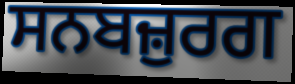
ਸਨਬਜ਼ੁਰਗ